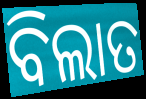
ବିଲାତ